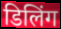
डिलिंग